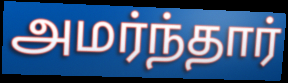
அமர்ந்தார்